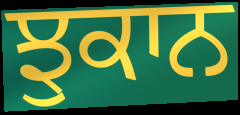
ਝੁਕਾਨ